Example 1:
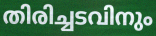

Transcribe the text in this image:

തിരിച്ചടവിനും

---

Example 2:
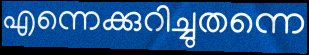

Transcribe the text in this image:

എന്നെക്കുറിച്ചുതന്നെ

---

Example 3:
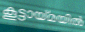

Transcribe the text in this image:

കൂട്ടായ്മയിൽ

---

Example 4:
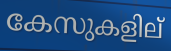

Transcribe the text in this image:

കേസുകളില്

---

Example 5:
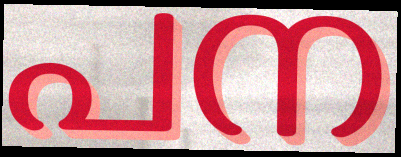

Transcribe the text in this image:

പന